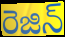
రెజిన్